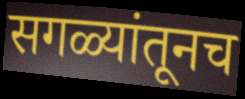
सगळ्यांतूनच